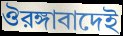
ঔরঙ্গাবাদেই